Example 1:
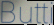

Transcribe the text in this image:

Butti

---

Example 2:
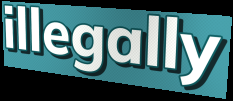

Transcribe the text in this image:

illegally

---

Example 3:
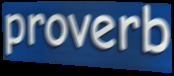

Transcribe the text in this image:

proverb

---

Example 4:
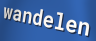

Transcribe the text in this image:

wandelen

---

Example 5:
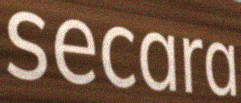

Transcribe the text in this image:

secara